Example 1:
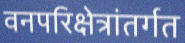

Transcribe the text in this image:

वनपरिक्षेत्रांतर्गत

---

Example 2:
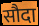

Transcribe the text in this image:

सौदा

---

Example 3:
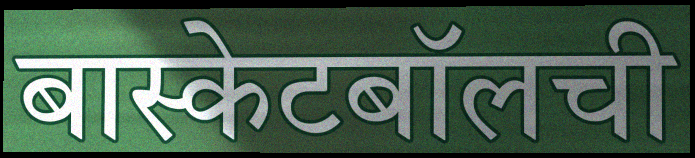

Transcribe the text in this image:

बास्केटबॉलची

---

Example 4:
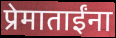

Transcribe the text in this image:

प्रेमाताईंना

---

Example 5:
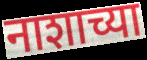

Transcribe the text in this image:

नाशाच्या